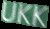
UKK